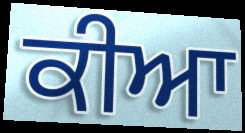
ਕੀਆ